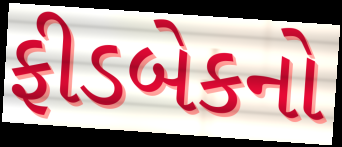
ફીડબેકનો